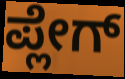
ಪ್ಲೇಗ್